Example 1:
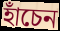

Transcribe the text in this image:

হাঁচেন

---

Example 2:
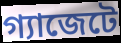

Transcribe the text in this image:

গ্যাজেটে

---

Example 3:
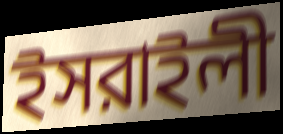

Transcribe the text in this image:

ইসরাইলী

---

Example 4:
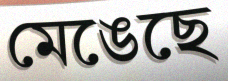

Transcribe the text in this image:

মেঙেছে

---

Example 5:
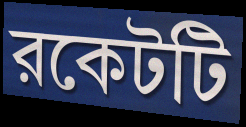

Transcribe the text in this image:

রকেটটি